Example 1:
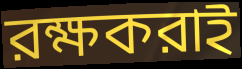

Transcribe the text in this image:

রক্ষকরাই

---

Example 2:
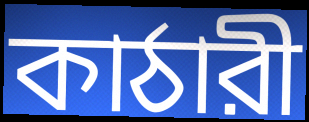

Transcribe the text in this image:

কাঠারী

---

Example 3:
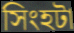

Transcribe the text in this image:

সিংহটা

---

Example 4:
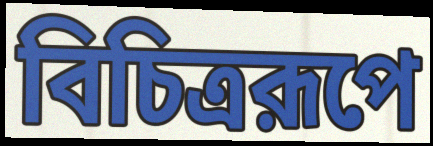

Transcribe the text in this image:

বিচিত্ররূপে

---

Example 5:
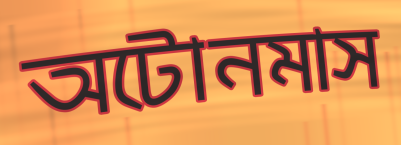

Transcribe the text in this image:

অটোনমাস